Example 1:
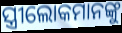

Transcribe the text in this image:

ସ୍ତ୍ରୀଲୋକମାନଙ୍କୁ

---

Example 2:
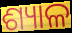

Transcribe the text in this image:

ଶ୍ୟାଳ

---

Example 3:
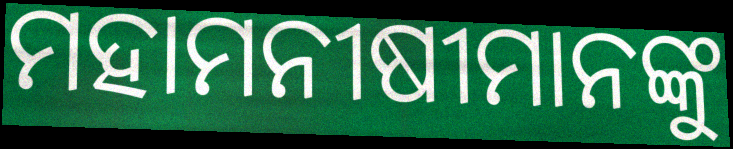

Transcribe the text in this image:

ମହାମନୀଷୀମାନଙ୍କୁ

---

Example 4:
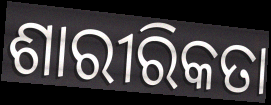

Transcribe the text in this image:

ଶାରୀରିକତା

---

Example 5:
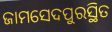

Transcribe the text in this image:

ଜାମସେଦପୁରସ୍ଥିତ